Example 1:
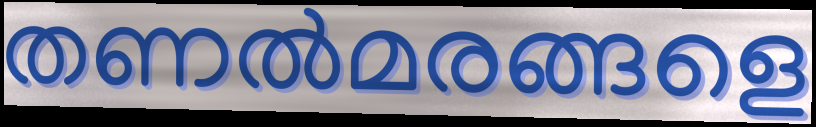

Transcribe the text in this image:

തണൽമരങ്ങളെ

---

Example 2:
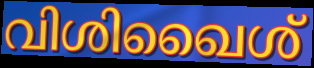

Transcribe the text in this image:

വിശിഖൈശ്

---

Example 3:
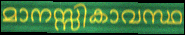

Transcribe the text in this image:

മാനസ്സികാവസ്ഥ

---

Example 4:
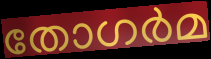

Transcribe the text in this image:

തോഗർമ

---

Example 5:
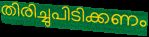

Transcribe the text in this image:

തിരിച്ചുപിടിക്കണം